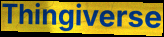
Thingiverse